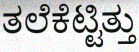
ತಲೆಕೆಟ್ಟಿತ್ತು